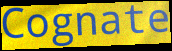
Cognate